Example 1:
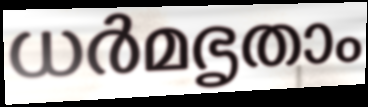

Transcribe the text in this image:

ധർമഭൃതാം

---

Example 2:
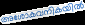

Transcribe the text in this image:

അശോകവനികയിൽ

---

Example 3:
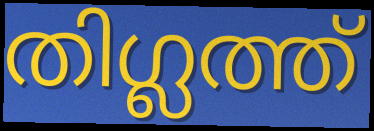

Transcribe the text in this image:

തിഗ്ലത്ത്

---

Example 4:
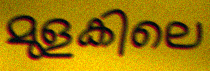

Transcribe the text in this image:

മുളകിലെ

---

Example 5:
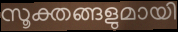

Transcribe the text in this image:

സൂക്തങ്ങളുമായി